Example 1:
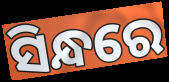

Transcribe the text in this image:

ସିନ୍ଧରେ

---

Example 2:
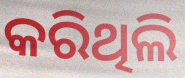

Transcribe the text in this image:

କରିଥିଲି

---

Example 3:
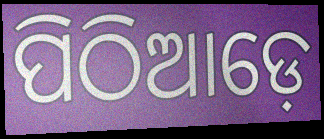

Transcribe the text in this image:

ପିଠିଆଡ଼େ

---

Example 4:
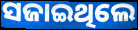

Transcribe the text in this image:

ସଜାଇଥିଲେ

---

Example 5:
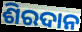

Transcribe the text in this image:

ଶିରଦାନ